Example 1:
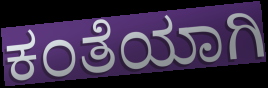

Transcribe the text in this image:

ಕಂತೆಯಾಗಿ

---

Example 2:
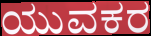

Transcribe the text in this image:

ಯುವಕರ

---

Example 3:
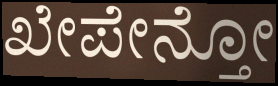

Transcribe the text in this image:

ಖೇಪೇನ್ತೋ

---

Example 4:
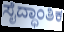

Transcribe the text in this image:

ಸೈದ್ಧಾಂತಿಕ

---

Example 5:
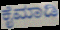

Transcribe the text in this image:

ಕೈಮಾಡಿ